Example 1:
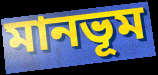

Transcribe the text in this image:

মানভূম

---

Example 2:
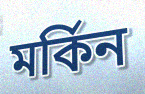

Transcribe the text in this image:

মর্কিন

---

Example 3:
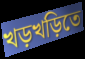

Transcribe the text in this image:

খড়খড়িতে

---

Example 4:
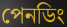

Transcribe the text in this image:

পেনডিং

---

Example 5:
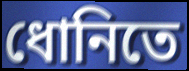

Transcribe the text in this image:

ধোনিতে